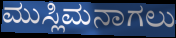
ಮುಸ್ಲಿಮನಾಗಲು